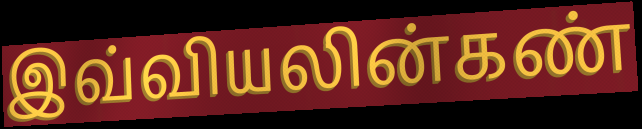
இவ்வியலின்கண்